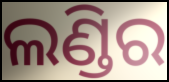
ଲଣ୍ଡିର